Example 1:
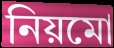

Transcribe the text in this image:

নিয়মো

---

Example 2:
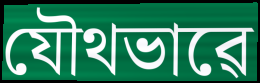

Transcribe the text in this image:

যৌথভাৱে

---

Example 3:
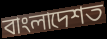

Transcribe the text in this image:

বাংলাদেশত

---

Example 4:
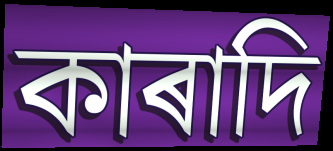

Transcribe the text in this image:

কাৰাদি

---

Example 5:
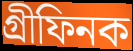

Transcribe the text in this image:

গ্ৰীফিনক